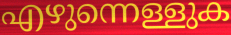
എഴുന്നെള്ളുക